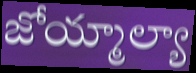
జోయ్మాల్యా